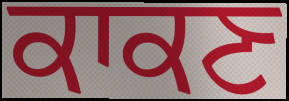
ਕਾਕਣ